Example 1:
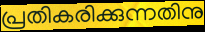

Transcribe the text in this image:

പ്രതികരിക്കുന്നതിനു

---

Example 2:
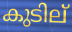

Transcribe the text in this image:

കുടില്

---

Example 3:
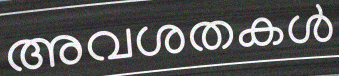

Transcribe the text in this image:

അവശതകൾ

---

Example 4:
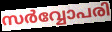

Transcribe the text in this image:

സർവ്വോപരി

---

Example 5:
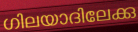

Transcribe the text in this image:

ഗിലയാദിലേക്കു